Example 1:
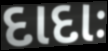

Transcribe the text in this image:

દાદાઃ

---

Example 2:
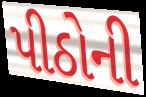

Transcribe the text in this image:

પીઠોની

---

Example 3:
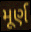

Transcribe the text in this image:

મૂર્ણ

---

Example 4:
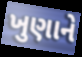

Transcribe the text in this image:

ખુણાને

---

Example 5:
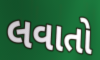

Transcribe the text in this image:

લવાતો